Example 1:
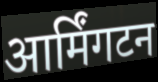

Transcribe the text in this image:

आर्मिंगटन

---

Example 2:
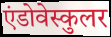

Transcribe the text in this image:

एंडोवेस्कुलर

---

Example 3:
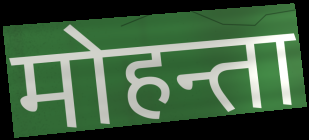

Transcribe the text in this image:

मोहन्ता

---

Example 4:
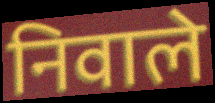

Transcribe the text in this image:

निवाले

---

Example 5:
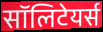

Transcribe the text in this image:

सॉलिटेयर्स